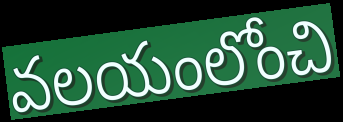
వలయంలోంచి